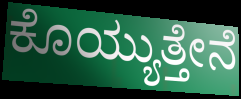
ಕೊಯ್ಯುತ್ತೇನೆ